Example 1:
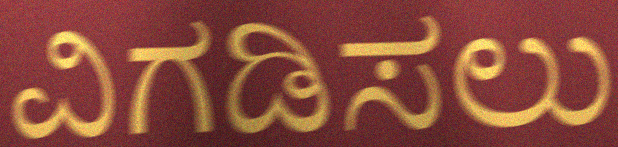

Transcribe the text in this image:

ವಿಗಡಿಸಲು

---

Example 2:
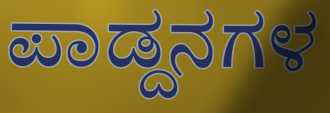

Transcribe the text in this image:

ಪಾಡ್ದನಗಳ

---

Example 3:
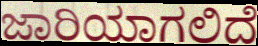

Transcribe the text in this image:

ಜಾರಿಯಾಗಲಿದೆ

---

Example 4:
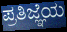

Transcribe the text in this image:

ಪ್ರತಿಜ್ಞೆಯ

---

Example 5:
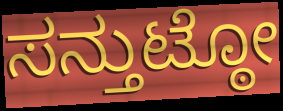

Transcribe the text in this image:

ಸನ್ತುಟ್ಠೋ